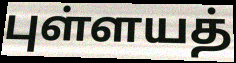
புள்ளயத்